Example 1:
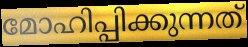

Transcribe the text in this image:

മോഹിപ്പിക്കുന്നത്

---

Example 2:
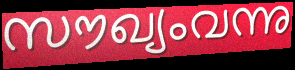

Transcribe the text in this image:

സൗഖ്യംവന്നു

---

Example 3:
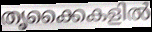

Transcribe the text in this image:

തൃക്കൈകളിൽ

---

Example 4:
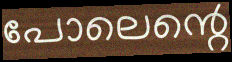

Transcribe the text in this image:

പോലെന്റെ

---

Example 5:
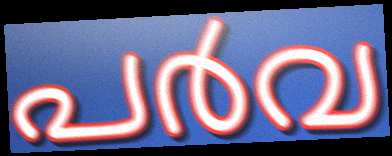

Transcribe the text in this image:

പർവ